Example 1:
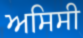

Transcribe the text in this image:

ਅਸਿਸੀ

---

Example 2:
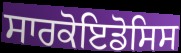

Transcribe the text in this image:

ਸਾਰਕੋਇਡੋਸਿਸ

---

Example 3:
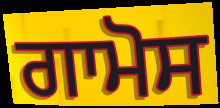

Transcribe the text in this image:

ਗਾਮੋਸ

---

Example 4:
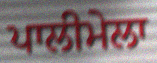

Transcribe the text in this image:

ਪਾਲੀਮੇਲਾ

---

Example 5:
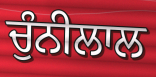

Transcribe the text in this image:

ਚੁੰਨੀਲਾਲ